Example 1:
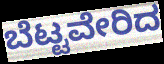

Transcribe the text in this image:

ಬೆಟ್ಟವೇರಿದ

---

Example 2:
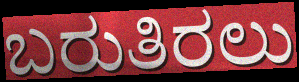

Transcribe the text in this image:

ಬರುತಿರಲು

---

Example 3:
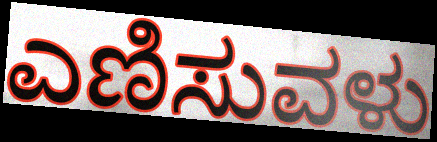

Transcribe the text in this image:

ಎಣಿಸುವಳು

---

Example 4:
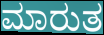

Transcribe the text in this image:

ಮಾರುತ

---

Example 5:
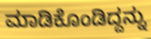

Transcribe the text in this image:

ಮಾಡಿಕೊಂಡಿದ್ದನ್ನು